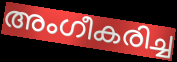
അംഗീകരിച്ച